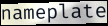
nameplate